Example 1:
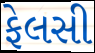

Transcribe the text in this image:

ફેલસી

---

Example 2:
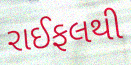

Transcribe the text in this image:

રાઈફલથી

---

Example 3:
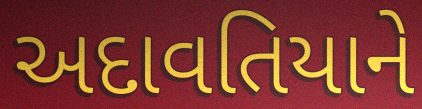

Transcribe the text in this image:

અદાવતિયાને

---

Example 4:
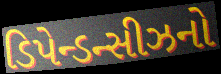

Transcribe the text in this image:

ડિપેન્ડન્સીઝનો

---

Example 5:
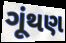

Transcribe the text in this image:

ગૂંથણ